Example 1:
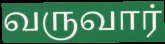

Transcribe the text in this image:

வருவார்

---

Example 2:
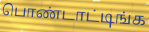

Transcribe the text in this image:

பொண்டாட்டிங்க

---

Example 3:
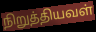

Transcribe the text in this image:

நிறுத்தியவள்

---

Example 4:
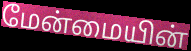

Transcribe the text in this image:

மேன்மையின்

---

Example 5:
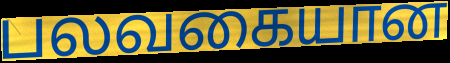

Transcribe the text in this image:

பலவகையான